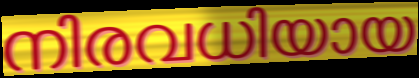
നിരവധിയായ